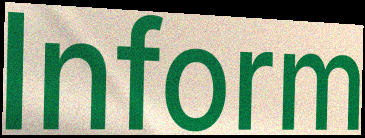
Inform